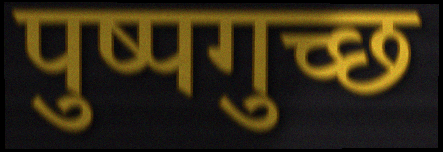
पुष्पगुच्छ